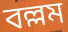
বল্লম